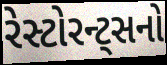
રેસ્ટોરન્ટ્સનો